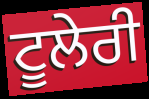
ਟੂਲੇਰੀ